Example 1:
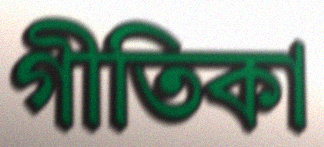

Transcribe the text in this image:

গীতিকা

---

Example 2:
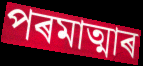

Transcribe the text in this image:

পৰমাত্মাৰ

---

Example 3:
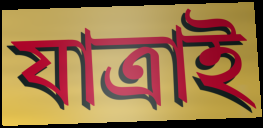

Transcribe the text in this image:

যাত্ৰাই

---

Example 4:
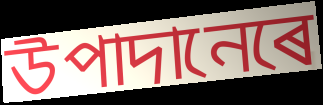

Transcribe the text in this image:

উপাদানেৰে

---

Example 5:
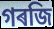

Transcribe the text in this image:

গৰজি